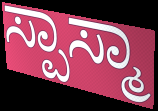
ಸ್ಪಾಸ್ಮಾ